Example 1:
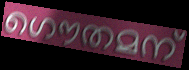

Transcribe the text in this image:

ഗൌതമന്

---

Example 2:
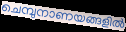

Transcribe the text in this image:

ചെമ്പുനാണയങ്ങളിൽ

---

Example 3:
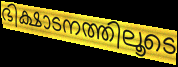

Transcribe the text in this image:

ഭിക്ഷാടനത്തിലൂടെ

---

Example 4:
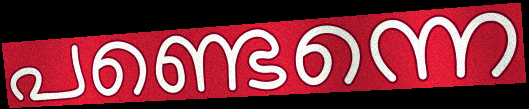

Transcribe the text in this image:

പണ്ടെന്നെ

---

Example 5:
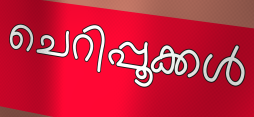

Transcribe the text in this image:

ചെറിപ്പൂക്കൾ